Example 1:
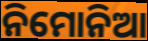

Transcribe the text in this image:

ନିମୋନିଆ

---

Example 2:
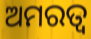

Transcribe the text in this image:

ଅମରତ୍ବ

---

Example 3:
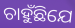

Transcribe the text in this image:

ଚାହୁଁଛିଯେ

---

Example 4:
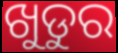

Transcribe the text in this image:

ଖୁଡୁର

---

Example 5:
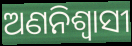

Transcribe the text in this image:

ଅଣନିଶ୍ୱାସୀ